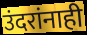
उंदरांनाही